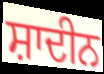
ਸ਼ਾਦੀਨ